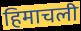
हिमाचली